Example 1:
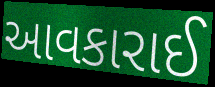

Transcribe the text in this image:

આવકારાઈ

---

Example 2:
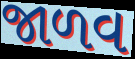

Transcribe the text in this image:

જાળવ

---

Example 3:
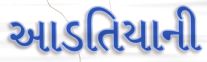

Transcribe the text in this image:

આડતિયાની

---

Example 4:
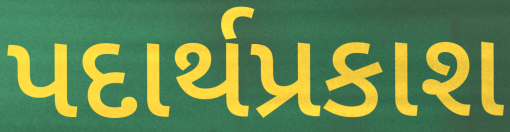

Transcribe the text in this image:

પદાર્થપ્રકાશ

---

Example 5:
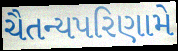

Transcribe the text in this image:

ચૈતન્યપરિણામે